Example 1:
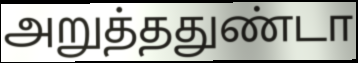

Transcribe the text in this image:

அறுத்ததுண்டா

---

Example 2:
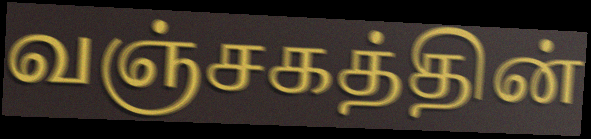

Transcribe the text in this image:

வஞ்சகத்தின்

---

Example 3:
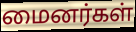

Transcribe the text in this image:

மைனர்கள்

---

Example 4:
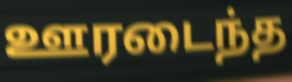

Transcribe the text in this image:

ஊரடைந்த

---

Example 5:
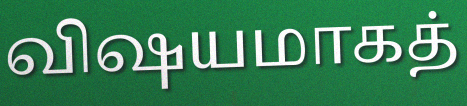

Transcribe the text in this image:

விஷயமாகத்